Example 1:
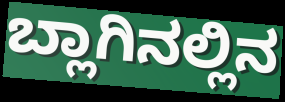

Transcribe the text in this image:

ಬ್ಲಾಗಿನಲ್ಲಿನ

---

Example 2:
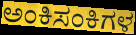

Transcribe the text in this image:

ಅಂಕಿಸಂಕಿಗಳ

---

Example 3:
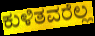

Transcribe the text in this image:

ಕುಳಿತವರೆಲ್ಲ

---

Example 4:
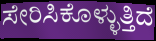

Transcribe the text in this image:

ಸೇರಿಸಿಕೊಳ್ಳುತ್ತಿದೆ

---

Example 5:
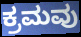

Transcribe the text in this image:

ಕ್ರಮವು